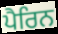
ਪੈਰਿਨ